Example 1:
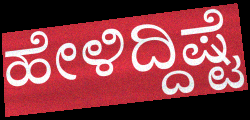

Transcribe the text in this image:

ಹೇಳಿದ್ದಿಷ್ಟೆ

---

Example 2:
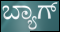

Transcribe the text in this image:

ಬ್ಯಾಗ್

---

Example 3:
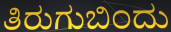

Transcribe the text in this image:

ತಿರುಗುಬಿಂದು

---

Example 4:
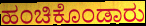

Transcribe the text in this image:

ಹಂಚಿಕೊಂಡಾರು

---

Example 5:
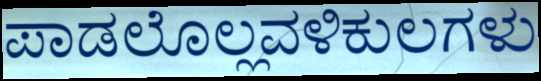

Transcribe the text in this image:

ಪಾಡಲೊಲ್ಲವಳಿಕುಲಗಳು